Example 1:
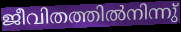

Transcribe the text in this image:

ജീവിതത്തിൽനിന്നു്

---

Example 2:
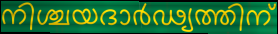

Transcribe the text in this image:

നിശ്ചയദാർഢ്യത്തിന്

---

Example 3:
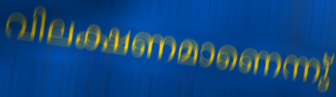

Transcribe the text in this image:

വിലക്ഷണമാണെന്നു്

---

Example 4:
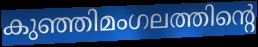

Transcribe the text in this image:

കുഞ്ഞിമംഗലത്തിന്റെ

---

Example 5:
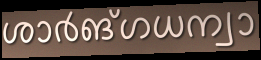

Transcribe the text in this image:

ശാർങ്ഗധന്വാ